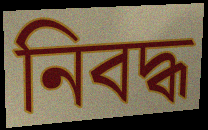
নিবদ্ধ